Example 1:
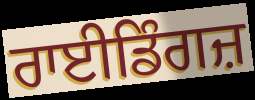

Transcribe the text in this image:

ਰਾਈਡਿੰਗਜ਼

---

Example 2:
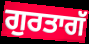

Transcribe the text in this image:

ਗੁਰਤਾਗੱ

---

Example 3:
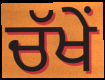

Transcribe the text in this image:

ਚੱਖੇਂ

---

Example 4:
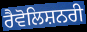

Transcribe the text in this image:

ਰੈਵੋਲਿਸ਼ਨਰੀ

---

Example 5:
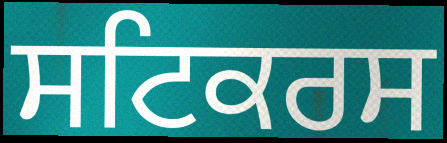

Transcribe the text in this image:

ਸਟਿਕਰਸ